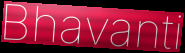
Bhavanti